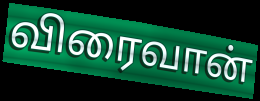
விரைவான்